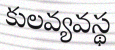
కులవ్యవస్థ